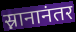
स्नानानंतर